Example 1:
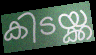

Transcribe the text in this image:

കിടയ്ക്ക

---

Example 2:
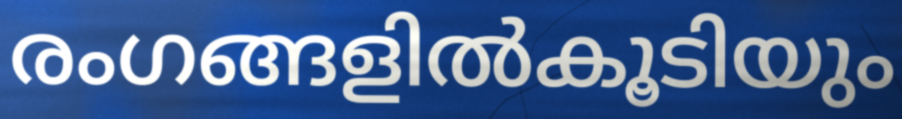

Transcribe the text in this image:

രംഗങ്ങളിൽകൂടിയും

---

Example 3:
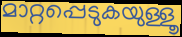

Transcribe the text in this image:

മാറ്റപ്പെടുകയുള്ളൂ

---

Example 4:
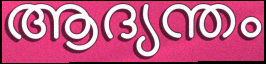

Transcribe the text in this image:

ആദ്യന്തം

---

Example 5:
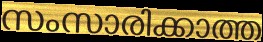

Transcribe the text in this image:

സംസാരിക്കാത്ത